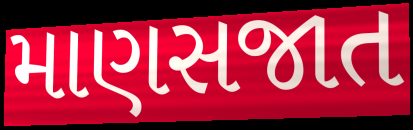
માણસજાત